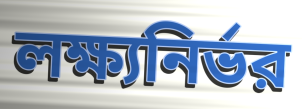
লক্ষ্যনির্ভর